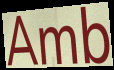
Amb